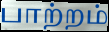
பாற்றம்